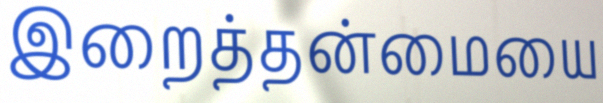
இறைத்தன்மையை